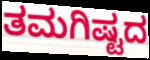
ತಮಗಿಷ್ಟದ